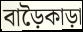
বাড়ৈকাড়া